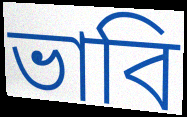
ভাবি